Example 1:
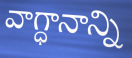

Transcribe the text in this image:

వాగ్ధానాన్ని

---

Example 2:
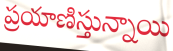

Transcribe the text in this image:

ప్రయాణిస్తున్నాయి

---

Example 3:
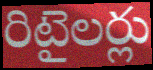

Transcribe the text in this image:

రిటైలర్లు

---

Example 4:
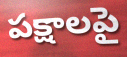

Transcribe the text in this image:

పక్షాలపై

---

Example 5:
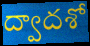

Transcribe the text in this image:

ద్వాదశో